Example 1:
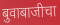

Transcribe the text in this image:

बुवाबाजीचा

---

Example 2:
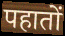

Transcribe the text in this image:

पहातों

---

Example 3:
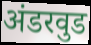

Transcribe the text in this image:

अंडरवुड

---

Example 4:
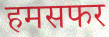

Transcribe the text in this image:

हमसफर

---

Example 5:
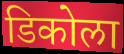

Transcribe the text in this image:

डिकोला